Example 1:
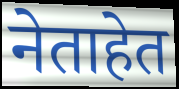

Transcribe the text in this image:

नेताहेत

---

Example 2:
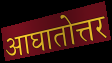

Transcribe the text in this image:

आघातोत्तर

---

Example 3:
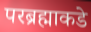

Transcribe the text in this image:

परब्रह्माकडे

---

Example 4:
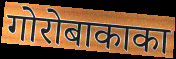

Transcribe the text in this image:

गोरोबाकाका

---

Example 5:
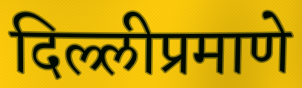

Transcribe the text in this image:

दिल्लीप्रमाणे